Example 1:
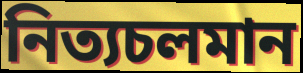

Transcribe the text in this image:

নিত্যচলমান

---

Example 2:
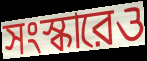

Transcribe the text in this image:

সংস্কারেও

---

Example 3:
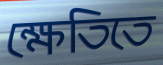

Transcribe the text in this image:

ক্ষেতিতে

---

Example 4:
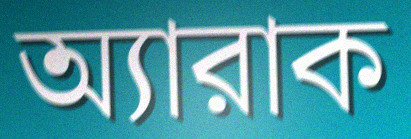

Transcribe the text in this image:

অ্যারাক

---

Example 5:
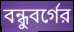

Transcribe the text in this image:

বন্ধুবর্গের